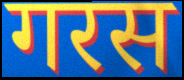
गरस